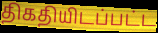
திகதியிடப்பட்ட